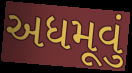
અધમૂવું